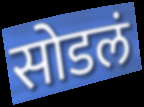
सोडलं